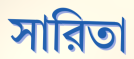
সারিতা